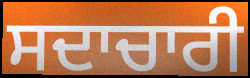
ਸਦਾਚਾਰੀ